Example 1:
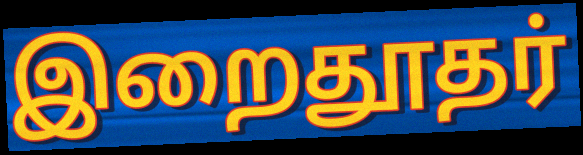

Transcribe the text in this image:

இறைதூதர்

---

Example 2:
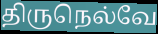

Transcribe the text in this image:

திருநெல்வே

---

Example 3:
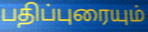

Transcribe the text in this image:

பதிப்புரையும்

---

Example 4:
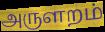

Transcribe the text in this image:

அருளறம்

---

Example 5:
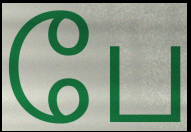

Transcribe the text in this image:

பே